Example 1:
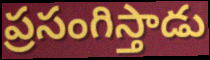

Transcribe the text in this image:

ప్రసంగిస్తాడు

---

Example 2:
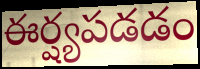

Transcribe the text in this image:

ఈర్ష్యపడడం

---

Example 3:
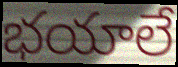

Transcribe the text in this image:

భయాలే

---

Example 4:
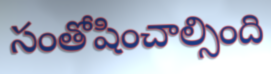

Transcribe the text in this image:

సంతోషించాల్సింది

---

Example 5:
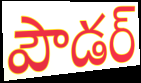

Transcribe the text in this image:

పౌడర్